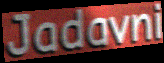
Jadavni